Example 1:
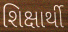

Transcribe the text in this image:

શિક્ષાર્થી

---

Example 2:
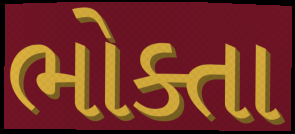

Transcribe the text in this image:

ભોક્તા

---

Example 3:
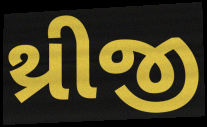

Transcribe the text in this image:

થ્રીજી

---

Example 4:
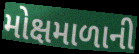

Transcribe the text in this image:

મોક્ષમાળાની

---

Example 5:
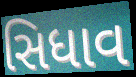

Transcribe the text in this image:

સિધાવ